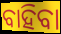
ବାହିବା